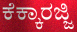
ಕೆಕ್ಕಾರಜ್ಜಿ